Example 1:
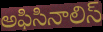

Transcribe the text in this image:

అఫిసినాలిస్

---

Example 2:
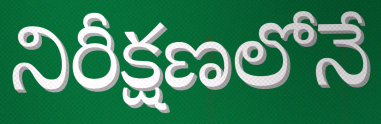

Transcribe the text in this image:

నిరీక్షణలోనే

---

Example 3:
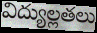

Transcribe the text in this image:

విద్యుల్లతలు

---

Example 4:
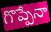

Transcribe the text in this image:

గొప్పేనా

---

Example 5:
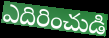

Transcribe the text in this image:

ఎదిరించుడి